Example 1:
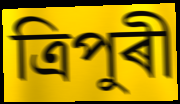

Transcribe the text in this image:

ত্ৰিপুৰী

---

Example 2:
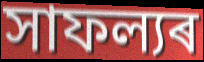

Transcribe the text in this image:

সাফল্যৰ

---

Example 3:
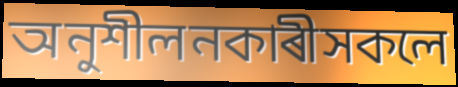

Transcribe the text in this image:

অনুশীলনকাৰীসকলে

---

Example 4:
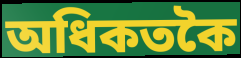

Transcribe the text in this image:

অধিকতকৈ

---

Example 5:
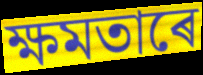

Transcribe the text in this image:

ক্ষমতাৰে